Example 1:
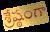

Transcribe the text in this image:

శ్రేష్ఠంగా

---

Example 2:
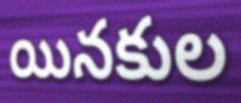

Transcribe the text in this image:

యినకుల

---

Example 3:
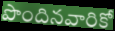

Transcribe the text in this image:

పొందినవారికో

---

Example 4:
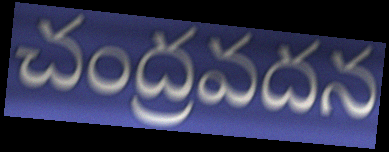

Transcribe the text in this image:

చంద్రవదన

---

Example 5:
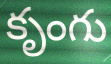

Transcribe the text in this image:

కృంగు